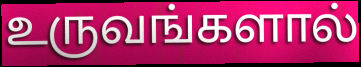
உருவங்களால்